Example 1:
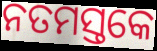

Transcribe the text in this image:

ନତମସ୍ତକେ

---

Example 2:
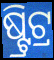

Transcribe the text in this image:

ଷ୍ଟ୍ରିଟ୍ର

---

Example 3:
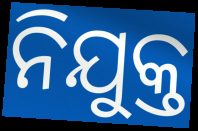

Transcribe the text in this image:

ନିଯୁକ୍ତ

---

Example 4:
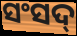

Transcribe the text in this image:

ସଂସଦ୍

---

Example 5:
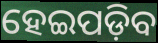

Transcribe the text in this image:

ହେଇପଡ଼ିବ